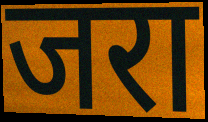
जरा